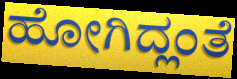
ಹೋಗಿದ್ಲಂತೆ